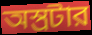
অস্ত্রটার